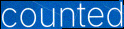
counted